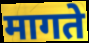
मागते